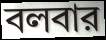
বলবার